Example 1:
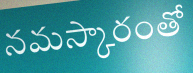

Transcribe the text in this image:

నమస్కారంతో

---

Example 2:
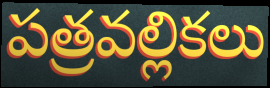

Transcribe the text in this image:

పత్రవల్లికలు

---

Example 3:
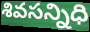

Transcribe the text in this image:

శివసన్నిధి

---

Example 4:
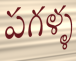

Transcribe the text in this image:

పగళ్ళ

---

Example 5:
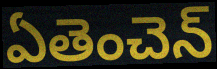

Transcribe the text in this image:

ఏతెంచెన్